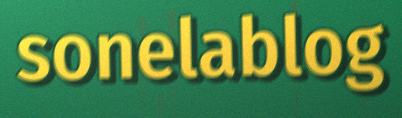
sonelablog